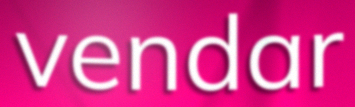
vendar